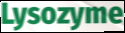
Lysozyme